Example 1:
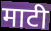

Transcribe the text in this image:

माटी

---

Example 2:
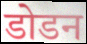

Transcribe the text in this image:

डोडन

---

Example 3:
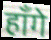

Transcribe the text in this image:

हाँगे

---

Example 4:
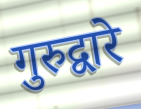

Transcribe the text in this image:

गुरुद्वारे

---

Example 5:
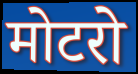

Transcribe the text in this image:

मोटरो